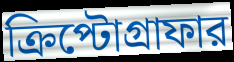
ক্রিপ্টোগ্রাফার